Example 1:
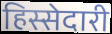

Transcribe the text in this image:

हिस्‍सेदारी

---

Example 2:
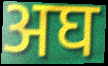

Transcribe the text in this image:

अघ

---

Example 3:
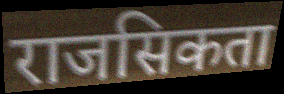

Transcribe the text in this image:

राजसिकता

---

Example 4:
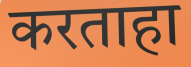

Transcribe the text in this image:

करताहा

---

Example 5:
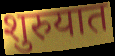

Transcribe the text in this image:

शुरुयात